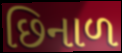
છિનાળ